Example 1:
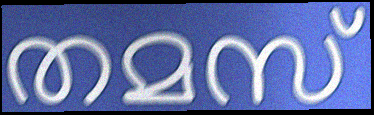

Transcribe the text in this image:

തമസ്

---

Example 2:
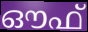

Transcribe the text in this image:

ഔഫ്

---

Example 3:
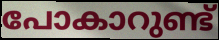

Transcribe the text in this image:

പോകാറുണ്ട്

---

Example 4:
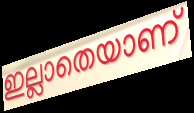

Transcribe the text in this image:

ഇല്ലാതെയാണ്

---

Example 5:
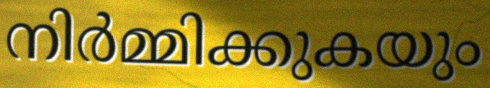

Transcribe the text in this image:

നിർമ്മിക്കുകയും